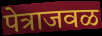
पेत्राजवळ